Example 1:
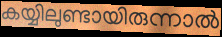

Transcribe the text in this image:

കയ്യിലുണ്ടായിരുന്നാൽ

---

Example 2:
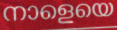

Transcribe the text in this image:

നാളെയെ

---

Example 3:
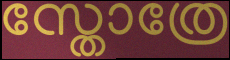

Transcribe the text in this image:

സ്തോത്രേ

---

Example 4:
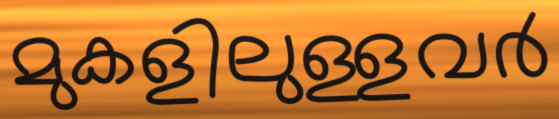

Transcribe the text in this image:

മുകളിലുള്ളവർ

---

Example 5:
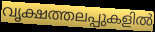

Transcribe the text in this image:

വൃക്ഷത്തലപ്പുകളിൽ